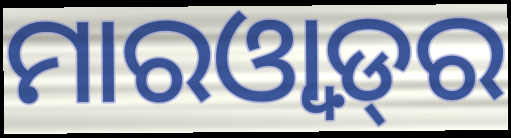
ମାରଓ୍ୱାଡ଼୍‌ର